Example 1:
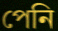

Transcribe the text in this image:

পেনি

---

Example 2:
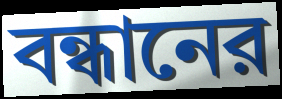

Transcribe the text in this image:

বন্ধানের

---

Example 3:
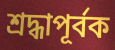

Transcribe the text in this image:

শ্রদ্ধাপূর্বক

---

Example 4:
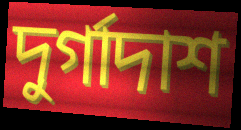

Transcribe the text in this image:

দুর্গাদাশ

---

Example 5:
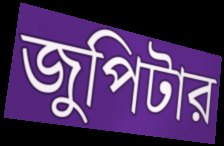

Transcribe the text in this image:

জুপিটার